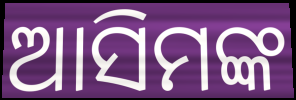
ଆସିମଙ୍କ